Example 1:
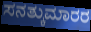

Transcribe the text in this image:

ಸನತ್ಕುಮಾರರ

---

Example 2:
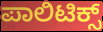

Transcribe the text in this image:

ಪಾಲಿಟಿಕ್ಸ್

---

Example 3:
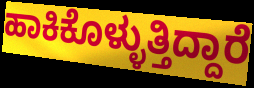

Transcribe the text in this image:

ಹಾಕಿಕೊಳ್ಳುತ್ತಿದ್ದಾರೆ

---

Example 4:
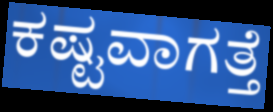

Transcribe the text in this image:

ಕಷ್ಟವಾಗತ್ತೆ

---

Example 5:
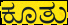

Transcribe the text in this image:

ಕೂತು